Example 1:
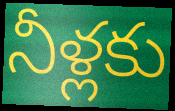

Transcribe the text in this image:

నీళ్లకు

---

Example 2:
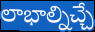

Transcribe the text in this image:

లాభాల్నిచ్చే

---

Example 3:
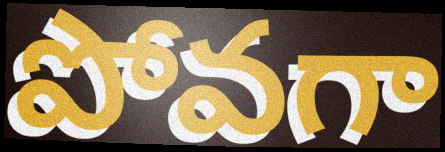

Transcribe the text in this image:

పోవగా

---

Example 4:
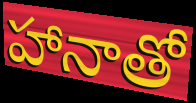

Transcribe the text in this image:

హానాతో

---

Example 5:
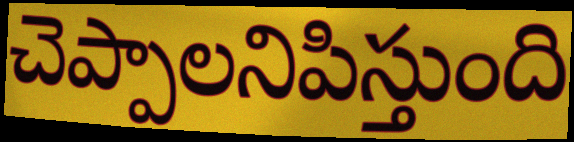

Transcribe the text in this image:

చెప్పాలనిపిస్తుంది